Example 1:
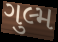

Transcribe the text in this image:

ગુલ્મ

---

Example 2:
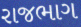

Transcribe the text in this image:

રાજભાગ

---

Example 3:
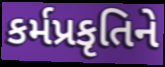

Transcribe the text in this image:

કર્મપ્રકૃતિને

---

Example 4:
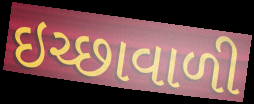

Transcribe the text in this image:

ઇચ્છાવાળી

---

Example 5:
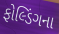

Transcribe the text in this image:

ફોલ્ડિંગના